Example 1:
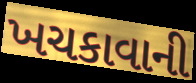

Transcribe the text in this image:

ખચકાવાની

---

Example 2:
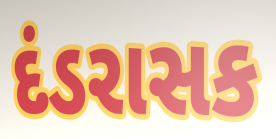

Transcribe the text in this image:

દંડરાસક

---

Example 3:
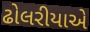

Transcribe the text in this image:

ઢોલરીયાએ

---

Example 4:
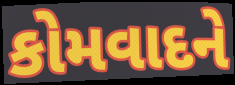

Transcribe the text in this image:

કોમવાદને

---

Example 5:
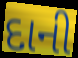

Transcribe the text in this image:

દાની